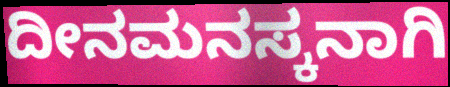
ದೀನಮನಸ್ಕನಾಗಿ